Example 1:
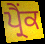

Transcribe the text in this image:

ਪ੍ਰੈਂਕ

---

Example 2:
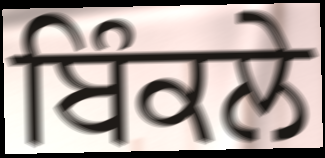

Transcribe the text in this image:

ਬਿੰਕਲੇ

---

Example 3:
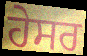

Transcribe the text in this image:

ਹੇਸਰ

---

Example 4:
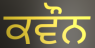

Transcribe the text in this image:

ਕਵੌਨ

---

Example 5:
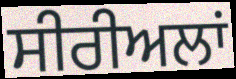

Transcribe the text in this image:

ਸੀਰੀਅਲਾਂ